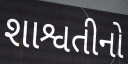
શાશ્વતીનો